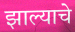
झाल्याचे